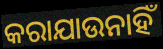
କରାଯାଉନାହିଁ